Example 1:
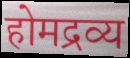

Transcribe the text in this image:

होमद्रव्य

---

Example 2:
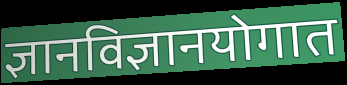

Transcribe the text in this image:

ज्ञानविज्ञानयोगात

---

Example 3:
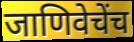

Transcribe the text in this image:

जाणिवेचेंच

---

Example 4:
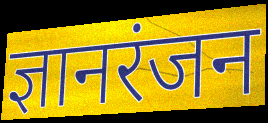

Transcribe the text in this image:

ज्ञानरंजन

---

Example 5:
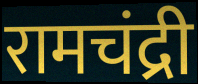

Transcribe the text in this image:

रामचंद्री